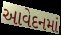
આવેદનમાં